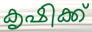
കൃഷിക്ക്